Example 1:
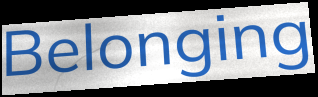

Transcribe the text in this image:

Belonging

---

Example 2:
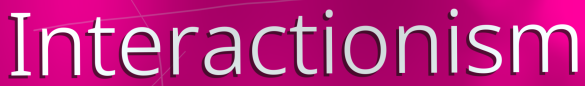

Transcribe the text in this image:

Interactionism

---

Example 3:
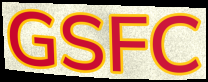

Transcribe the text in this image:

GSFC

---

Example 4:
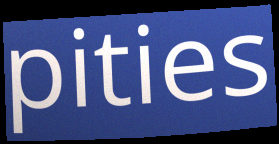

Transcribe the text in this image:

pities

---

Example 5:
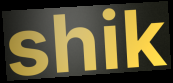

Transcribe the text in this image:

shik